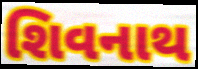
શિવનાથ